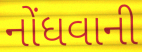
નોંધવાની